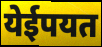
येईपयत